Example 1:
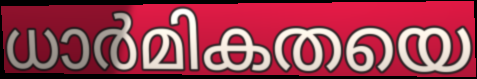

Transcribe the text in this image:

ധാർമികതയെ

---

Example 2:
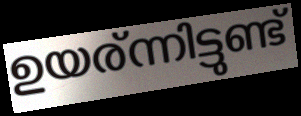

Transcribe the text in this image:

ഉയര്ന്നിട്ടുണ്ട്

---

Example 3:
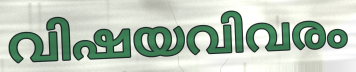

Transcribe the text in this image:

വിഷയവിവരം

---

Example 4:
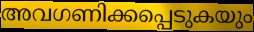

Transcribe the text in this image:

അവഗണിക്കപ്പെടുകയും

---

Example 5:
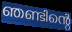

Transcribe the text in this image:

ഞണ്ടിന്റെ